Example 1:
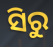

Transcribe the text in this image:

ସିରୁ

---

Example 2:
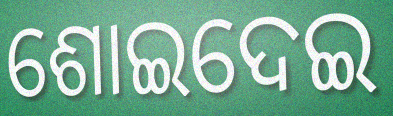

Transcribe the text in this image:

ଶୋଇଦେଇ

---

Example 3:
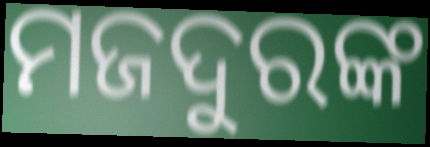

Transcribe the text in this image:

ମଜଦୁରଙ୍କ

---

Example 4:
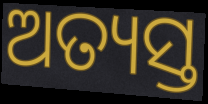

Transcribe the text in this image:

ଅତ୍ୟସ୍ତ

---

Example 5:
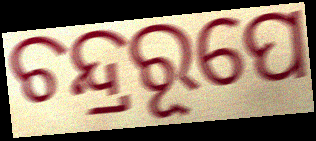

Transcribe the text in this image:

ଚନ୍ଦ୍ରରୂପେ